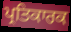
ਪ੍ਰਤਿਕਾਰਕ